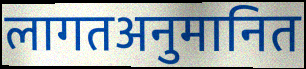
लागतअनुमानित